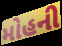
મોહની